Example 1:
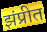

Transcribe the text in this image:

झंप्रीत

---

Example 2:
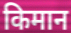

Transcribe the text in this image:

किमान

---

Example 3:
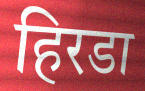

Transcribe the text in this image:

हिरडा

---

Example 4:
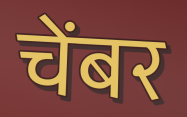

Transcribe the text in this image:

चेंबर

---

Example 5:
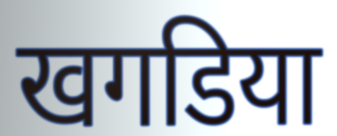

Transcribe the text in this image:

खगडिया